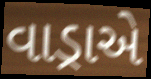
વાડ્રાએ